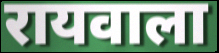
रायवाला